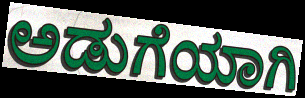
ಅಡುಗೆಯಾಗಿ